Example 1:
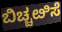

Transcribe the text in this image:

ಬಿಚ್ಚೞಿಸೆ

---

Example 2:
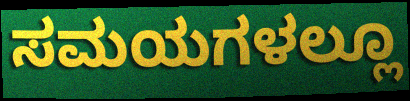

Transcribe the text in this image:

ಸಮಯಗಳಲ್ಲೂ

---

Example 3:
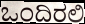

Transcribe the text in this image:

ಒಂದಿರಲಿ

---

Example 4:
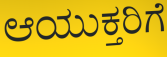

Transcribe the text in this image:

ಆಯುಕ್ತರಿಗೆ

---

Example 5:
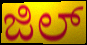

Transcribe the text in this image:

ಜಿಲ್